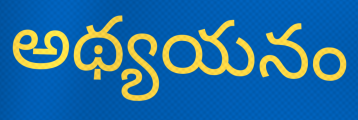
అథ్యయనం